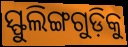
ସ୍ଫୁଲିଙ୍ଗଗୁଡ଼ିକୁ